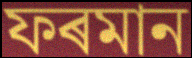
ফৰমান